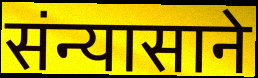
संन्यासाने